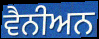
ਵੈਨੀਅਨ